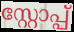
സ്റ്റോപ്പ്